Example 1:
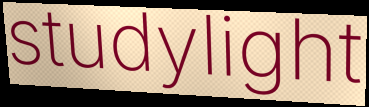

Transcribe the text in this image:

studylight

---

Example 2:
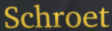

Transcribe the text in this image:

Schroet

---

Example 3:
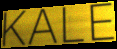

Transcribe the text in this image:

KALE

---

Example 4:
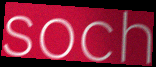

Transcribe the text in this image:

soch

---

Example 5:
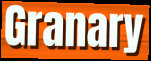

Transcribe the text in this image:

Granary